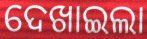
ଦେଖାଇଲା